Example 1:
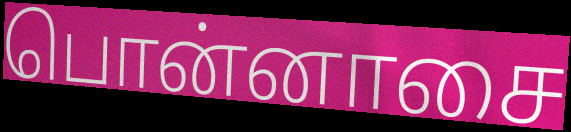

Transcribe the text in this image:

பொன்னாசை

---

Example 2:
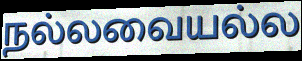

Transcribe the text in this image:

நல்லவையல்ல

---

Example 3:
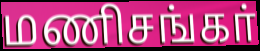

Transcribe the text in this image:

மணிசங்கர்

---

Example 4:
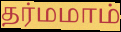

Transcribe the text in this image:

தர்மமாம்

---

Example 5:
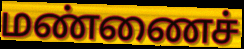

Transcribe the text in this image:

மண்ணைச்